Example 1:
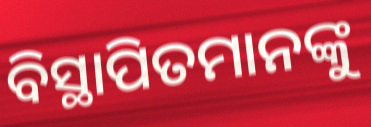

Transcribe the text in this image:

ବିସ୍ଥାପିତମାନଙ୍କୁ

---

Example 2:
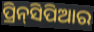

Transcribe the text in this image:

ପ୍ରିନ୍‌ସିପିଆର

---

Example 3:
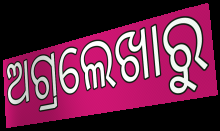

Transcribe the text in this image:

ଅଗ୍ରଲେଖାରୁ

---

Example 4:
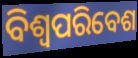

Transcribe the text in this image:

ବିଶ୍ୱପରିବେଶ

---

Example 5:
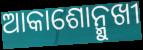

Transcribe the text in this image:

ଆକାଶୋନ୍ମୁଖୀ